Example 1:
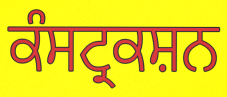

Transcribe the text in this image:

ਕੰਸਟ੍ਰਕਸ਼ਨ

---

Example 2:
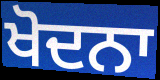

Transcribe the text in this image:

ਖੋਦਨਾ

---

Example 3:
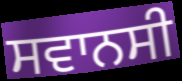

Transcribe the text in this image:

ਸਵਾਨਸੀ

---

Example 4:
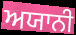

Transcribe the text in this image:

ਅਯਾਨੀ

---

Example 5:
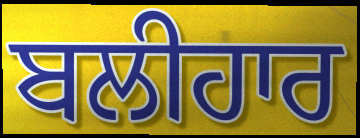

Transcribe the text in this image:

ਬਲੀਹਾਰ